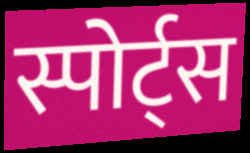
स्पोर्ट्स